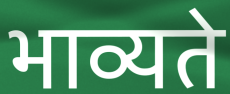
भाव्यते